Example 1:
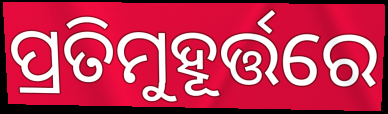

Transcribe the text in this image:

ପ୍ରତିମୁହୂର୍ତ୍ତରେ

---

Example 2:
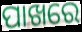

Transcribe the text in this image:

ପାଖରେ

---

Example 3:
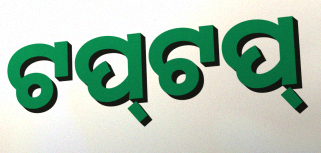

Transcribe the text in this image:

ଟପ୍‌ଟପ୍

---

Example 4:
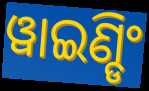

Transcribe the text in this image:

ୱାଇଣ୍ଡିଂ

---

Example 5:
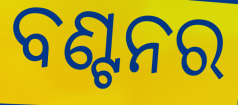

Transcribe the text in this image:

ବଣ୍ଟନର